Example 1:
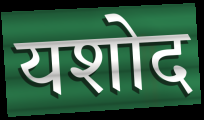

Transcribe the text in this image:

यशोद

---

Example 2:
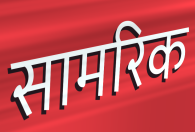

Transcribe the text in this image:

सामरिक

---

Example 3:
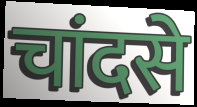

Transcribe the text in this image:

चांदसे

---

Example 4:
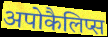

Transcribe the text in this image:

अपोकैलिप्स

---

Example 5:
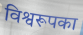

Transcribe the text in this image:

विश्वरूपका